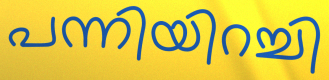
പന്നിയിറച്ചി